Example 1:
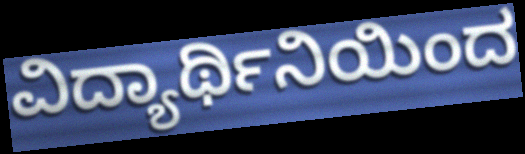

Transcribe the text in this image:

ವಿದ್ಯಾರ್ಥಿನಿಯಿಂದ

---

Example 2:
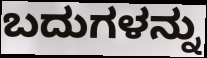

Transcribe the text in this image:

ಬದುಗಳನ್ನು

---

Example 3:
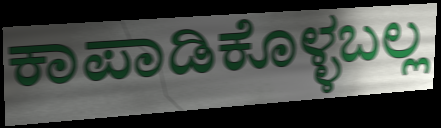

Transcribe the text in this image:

ಕಾಪಾಡಿಕೊಳ್ಳಬಲ್ಲ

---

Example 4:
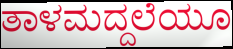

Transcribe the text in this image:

ತಾಳಮದ್ದಲೆಯೂ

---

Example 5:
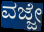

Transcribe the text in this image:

ವಜ್ಜೇ